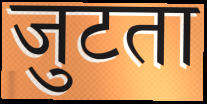
जुटता